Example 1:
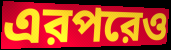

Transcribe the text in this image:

এরপরেও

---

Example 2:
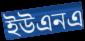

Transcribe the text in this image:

ইউএনএ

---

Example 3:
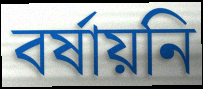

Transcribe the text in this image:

বর্ষায়নি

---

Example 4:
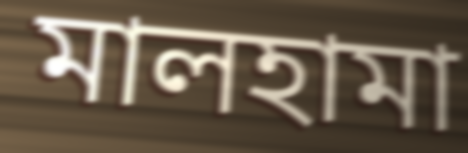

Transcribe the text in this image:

মালহামা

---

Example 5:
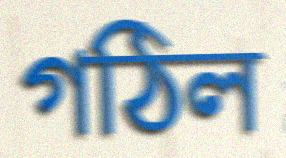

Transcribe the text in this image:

গঠিল